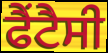
ਫੈਂਟੈਸੀ